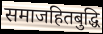
समाजहितबुद्धि